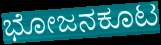
ಭೋಜನಕೂಟ